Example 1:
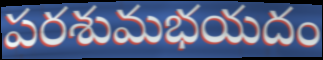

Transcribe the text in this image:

పరశుమభయదం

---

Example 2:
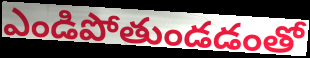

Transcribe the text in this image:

ఎండిపోతుండడంతో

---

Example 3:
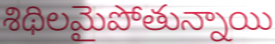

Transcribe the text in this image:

శిథిలమైపోతున్నాయి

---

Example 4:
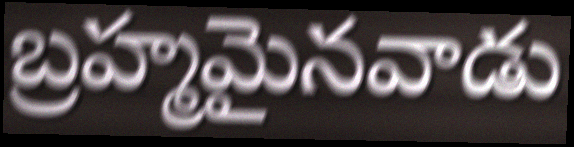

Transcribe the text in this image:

బ్రహ్మమైనవాడు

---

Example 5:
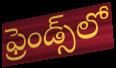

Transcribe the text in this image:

ఫ్రెండ్స్‌లో